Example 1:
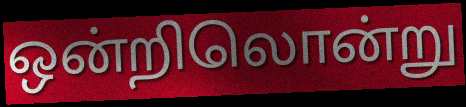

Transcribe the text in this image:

ஒன்றிலொன்று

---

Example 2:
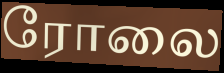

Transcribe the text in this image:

ரோலை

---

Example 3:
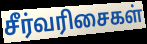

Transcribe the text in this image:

சீர்வரிசைகள்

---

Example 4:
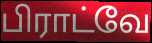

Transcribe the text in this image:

பிராட்வே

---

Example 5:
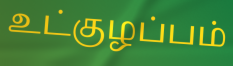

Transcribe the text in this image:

உட்குழப்பம்